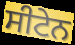
ਸੀਟੇਨ